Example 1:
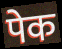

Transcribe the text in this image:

पेक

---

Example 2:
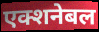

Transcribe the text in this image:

एक्शनेबल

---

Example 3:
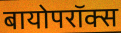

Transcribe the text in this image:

बायोपरॉक्स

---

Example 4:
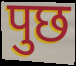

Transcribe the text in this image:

पुछ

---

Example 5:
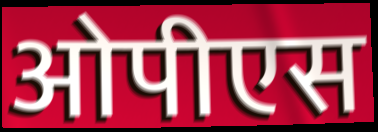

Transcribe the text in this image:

ओपीएस